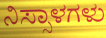
ನಿಸ್ಸಾಳಗಳು